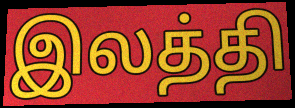
இலத்தி